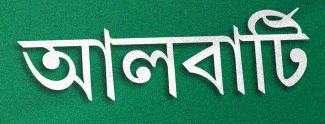
আলবার্টি